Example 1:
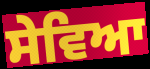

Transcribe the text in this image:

ਸੇਵਿਆ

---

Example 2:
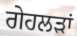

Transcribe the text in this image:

ਗੇਹਲੜਾਂ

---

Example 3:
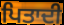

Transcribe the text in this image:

ਪਿਤਾਦੀ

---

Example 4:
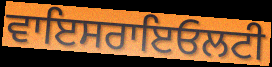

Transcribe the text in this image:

ਵਾਇਸਰਾਇਓਲਟੀ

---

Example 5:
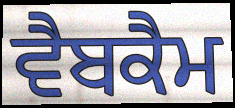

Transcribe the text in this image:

ਵੈਬਕੈਮ